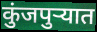
कुंजपुऱ्यात